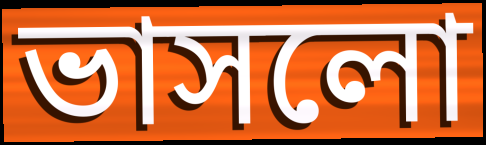
ভাসলো